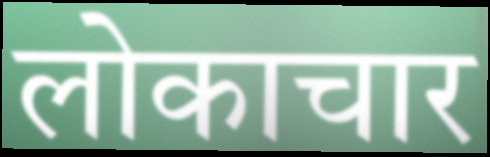
लोकाचार